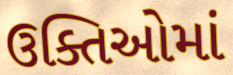
ઉક્તિઓમાં